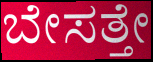
ಬೇಸತ್ತೇ